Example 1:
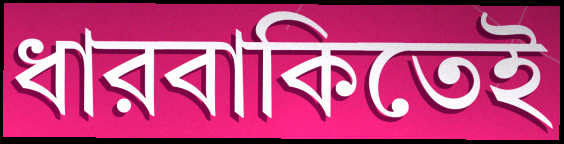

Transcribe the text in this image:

ধারবাকিতেই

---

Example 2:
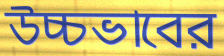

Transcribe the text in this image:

উচ্চভাবের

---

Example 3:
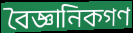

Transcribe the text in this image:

বৈজ্ঞানিকগণ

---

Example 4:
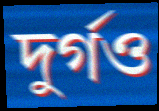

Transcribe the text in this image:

দুর্গও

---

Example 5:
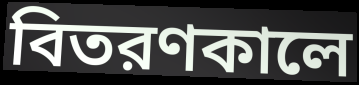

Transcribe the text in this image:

বিতরণকালে